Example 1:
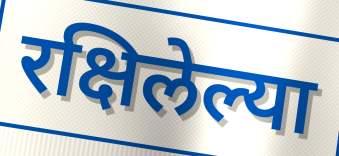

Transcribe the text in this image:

रक्षिलेल्या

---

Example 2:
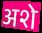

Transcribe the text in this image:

अशे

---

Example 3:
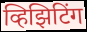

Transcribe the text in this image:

व्हिझिटिंग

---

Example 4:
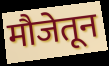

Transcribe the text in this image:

मौजेतून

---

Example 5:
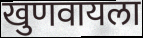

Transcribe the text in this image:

खुणवायला